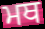
ਮਥ